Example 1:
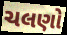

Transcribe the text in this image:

ચલણો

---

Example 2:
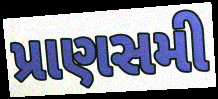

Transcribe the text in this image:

પ્રાણસમી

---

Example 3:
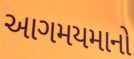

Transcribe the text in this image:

આગમયમાનો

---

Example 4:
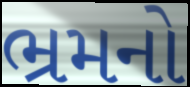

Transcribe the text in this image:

ભ્રમનો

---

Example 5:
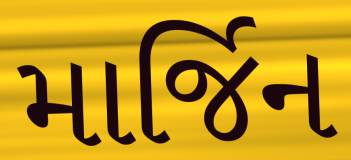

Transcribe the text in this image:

માર્જિન